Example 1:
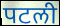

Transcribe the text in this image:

पटली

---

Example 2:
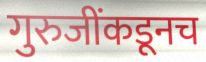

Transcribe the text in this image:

गुरुजींकडूनच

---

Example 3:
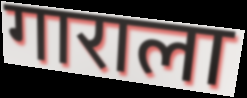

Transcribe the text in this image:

गाराला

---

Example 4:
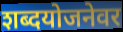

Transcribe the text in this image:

शब्दयोजनेवर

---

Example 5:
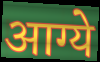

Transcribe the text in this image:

आग्ये